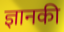
ज्ञानकी